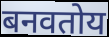
बनवतोय